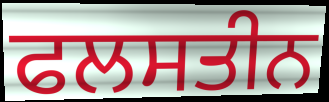
ਫਲਸਤੀਨ